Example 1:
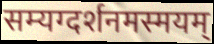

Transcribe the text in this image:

सम्यग्दर्शनमस्मयम्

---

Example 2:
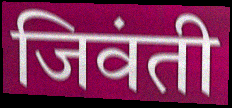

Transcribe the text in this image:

जिवंती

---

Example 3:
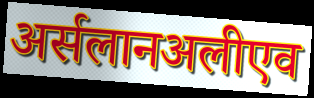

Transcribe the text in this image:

अर्सलानअलीएव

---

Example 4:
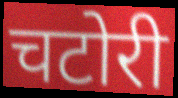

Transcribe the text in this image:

चटोरी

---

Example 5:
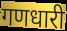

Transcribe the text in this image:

गणधारी